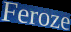
Feroze